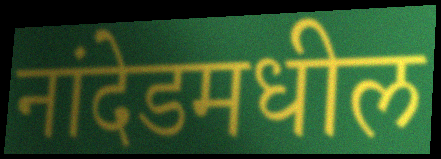
नांदेडमधील